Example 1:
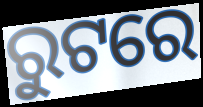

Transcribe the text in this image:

ରୁଟରେ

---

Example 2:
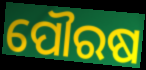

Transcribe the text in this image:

ପୌରଷ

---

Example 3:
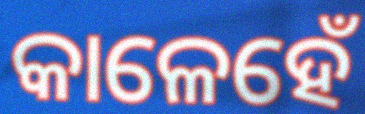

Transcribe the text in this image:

କାଳେହେଁ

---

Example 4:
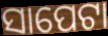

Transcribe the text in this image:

ସାପେଟା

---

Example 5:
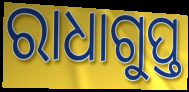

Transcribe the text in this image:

ରାଧାଗୁପ୍ତ